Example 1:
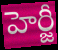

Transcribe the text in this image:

హెర్జీ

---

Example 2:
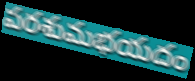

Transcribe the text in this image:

పరశుమభయదం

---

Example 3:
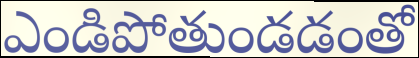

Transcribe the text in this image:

ఎండిపోతుండడంతో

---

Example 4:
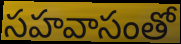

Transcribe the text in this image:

సహవాసంతో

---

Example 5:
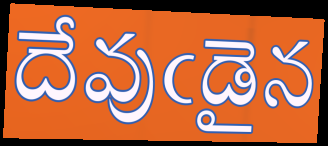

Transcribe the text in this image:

దేవుఁడైన